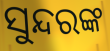
ସୁନ୍ଦରଙ୍କ